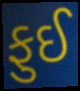
ફુઈ